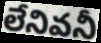
లేనివనీ